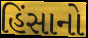
હિંસાનો